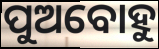
ପୁଅବୋହୁ